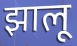
झालू